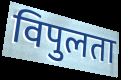
विपुलता